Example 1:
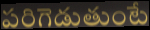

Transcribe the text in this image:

పరిగెడుతుంటే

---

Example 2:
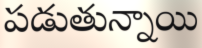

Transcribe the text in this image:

పడుతున్నాయి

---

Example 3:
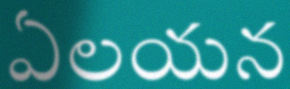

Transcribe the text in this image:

ఏలయన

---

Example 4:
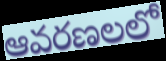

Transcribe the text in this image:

ఆవరణలలో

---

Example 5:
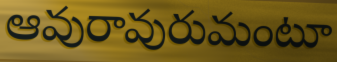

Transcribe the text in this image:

ఆవురావురుమంటూ